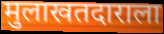
मुलाखतदाराला